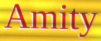
Amity